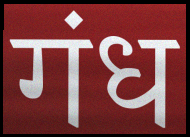
गंध